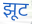
झूट